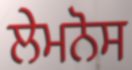
ਲੇਮਨੋਸ